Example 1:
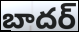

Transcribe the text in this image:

బాదర్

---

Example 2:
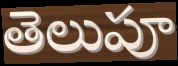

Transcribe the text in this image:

తెలుపూ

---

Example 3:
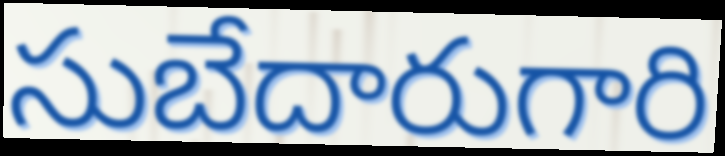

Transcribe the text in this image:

సుబేదారుగారి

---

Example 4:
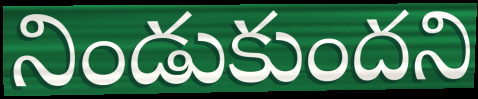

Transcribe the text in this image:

నిండుకుందని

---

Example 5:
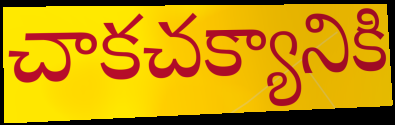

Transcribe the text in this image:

చాకచక్యానికి